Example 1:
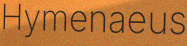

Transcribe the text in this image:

Hymenaeus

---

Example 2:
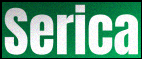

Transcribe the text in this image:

Serica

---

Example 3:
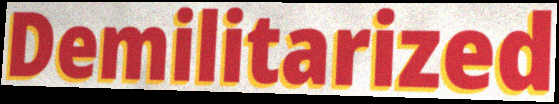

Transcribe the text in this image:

Demilitarized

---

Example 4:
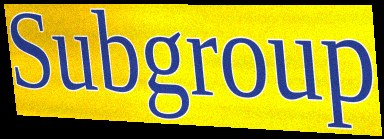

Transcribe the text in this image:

Subgroup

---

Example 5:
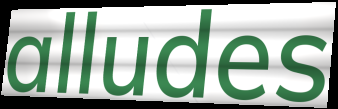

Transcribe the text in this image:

alludes